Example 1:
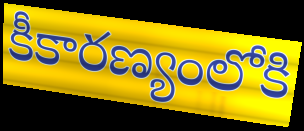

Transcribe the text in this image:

కీకారణ్యంలోకి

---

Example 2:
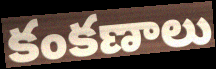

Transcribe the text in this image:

కంకణాలు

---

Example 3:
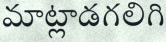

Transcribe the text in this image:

మాట్లాడగలిగి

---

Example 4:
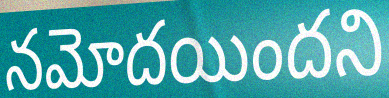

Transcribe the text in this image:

నమోదయిందని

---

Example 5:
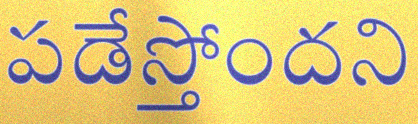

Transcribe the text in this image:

పడేస్తోందని